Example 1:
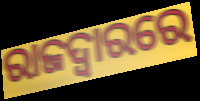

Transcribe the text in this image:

ରାଜଦ୍ୱାରରେ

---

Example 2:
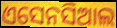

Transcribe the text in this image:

ଏସେନସିଆଲ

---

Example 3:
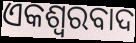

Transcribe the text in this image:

ଏକଶ୍ୱରବାଦ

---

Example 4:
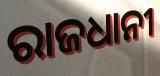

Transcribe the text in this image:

ରାଜଧାନୀ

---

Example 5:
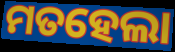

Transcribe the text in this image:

ମତହେଲା